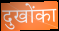
दुखोंका